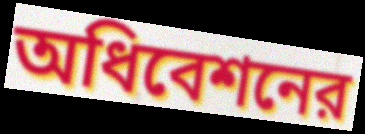
অধিবেশনের